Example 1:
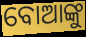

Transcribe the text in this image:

ବୋଆଙ୍କୁ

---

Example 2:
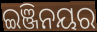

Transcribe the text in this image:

ଇଞ୍ଜିନୟର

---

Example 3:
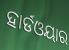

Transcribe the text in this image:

ହାର୍ଡଓୟାର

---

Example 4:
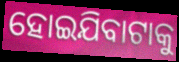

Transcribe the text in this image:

ହୋଇଯିବାଟାକୁ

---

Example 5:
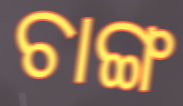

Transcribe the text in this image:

ଚାଙ୍ଗ